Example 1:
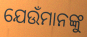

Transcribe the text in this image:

ଯେଉଁମାନଙ୍କୁ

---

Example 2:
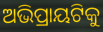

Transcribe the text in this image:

ଅଭିପ୍ରାୟଟିକୁ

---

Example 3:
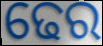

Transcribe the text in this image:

ଢେର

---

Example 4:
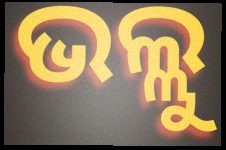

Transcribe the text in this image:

ଭଲ୍ଲୁ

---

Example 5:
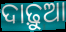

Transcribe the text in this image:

ଦାଢ଼ୁଆ